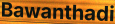
Bawanthadi